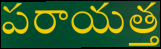
పరాయత్త